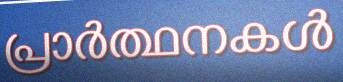
പ്രാർത്ഥനകൾ